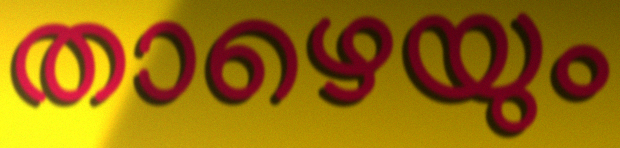
താഴെയും